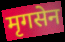
मृगसेन